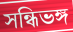
সন্ধিভঙ্গ